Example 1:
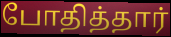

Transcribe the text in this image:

போதித்தார்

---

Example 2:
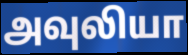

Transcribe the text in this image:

அவுலியா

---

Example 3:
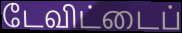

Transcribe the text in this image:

டேவிட்டைப்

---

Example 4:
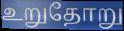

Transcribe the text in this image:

உறுதோறு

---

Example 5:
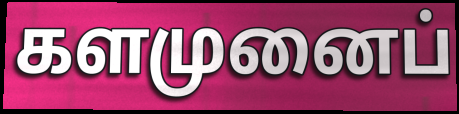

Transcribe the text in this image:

களமுனைப்